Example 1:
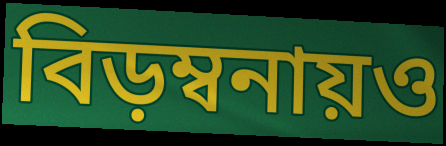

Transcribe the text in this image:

বিড়ম্বনায়ও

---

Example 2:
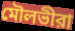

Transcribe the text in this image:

মৌলভীরা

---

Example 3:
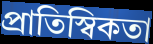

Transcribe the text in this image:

প্রাতিস্বিকতা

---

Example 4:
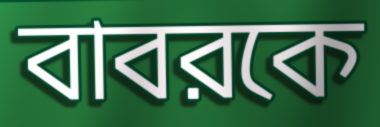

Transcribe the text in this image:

বাবরকে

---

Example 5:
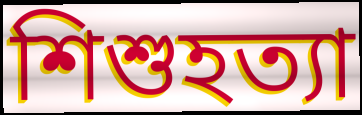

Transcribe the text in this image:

শিশুহত্যা